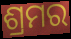
ଶ୍ରମର